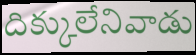
దిక్కులేనివాడు